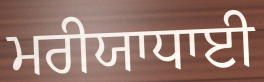
ਮਰੀਯਾਧਾਈ